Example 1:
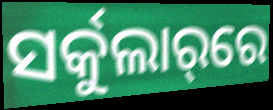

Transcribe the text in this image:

ସର୍କୁଲାର୍‌ରେ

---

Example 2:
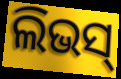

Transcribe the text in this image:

ଲିଭସ୍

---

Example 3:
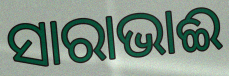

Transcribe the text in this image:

ସାରାଭାଈ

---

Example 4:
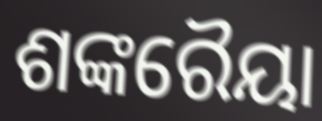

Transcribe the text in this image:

ଶଙ୍କରୈୟା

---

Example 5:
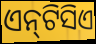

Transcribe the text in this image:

ଏନ୍‌ଟିସିଏ